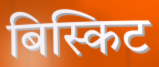
बिस्किट